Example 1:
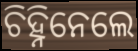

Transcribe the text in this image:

ଚିହ୍ନିନେଲେ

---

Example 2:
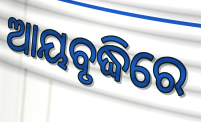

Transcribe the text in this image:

ଆୟବୃଦ୍ଧିରେ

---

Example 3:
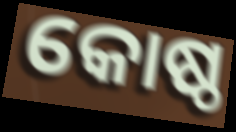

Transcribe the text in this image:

କୋଷ୍ଠ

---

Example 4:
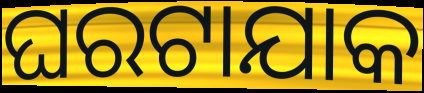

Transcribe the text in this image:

ଘରଟାଯାକ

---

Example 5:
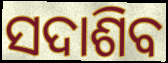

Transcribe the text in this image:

ସଦାଶିବ